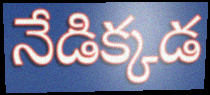
నేడిక్కడ